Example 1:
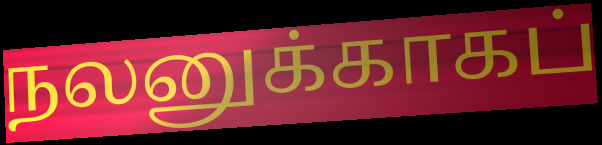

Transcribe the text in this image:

நலனுக்காகப்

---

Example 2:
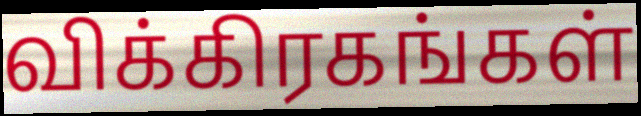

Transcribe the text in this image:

விக்கிரகங்கள்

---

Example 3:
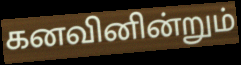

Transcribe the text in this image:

கனவினின்றும்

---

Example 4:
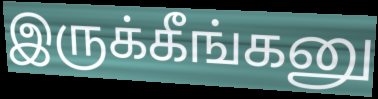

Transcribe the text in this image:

இருக்கீங்கனு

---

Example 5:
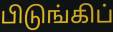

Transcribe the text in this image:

பிடுங்கிப்